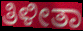
ತಿಳೀತಾ